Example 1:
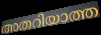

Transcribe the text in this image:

അതറിയാത്ത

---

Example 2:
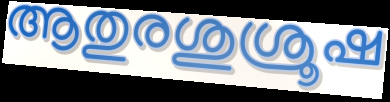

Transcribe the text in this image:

ആതുരശുശ്രൂഷ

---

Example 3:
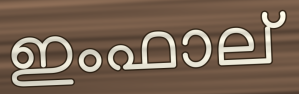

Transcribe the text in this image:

ഇംഫാല്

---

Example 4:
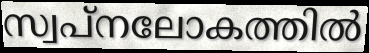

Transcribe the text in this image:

സ്വപ്നലോകത്തിൽ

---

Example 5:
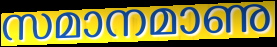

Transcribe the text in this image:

സമാനമാണു